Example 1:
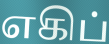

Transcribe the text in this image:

எகிப்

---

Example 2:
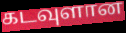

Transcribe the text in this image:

கடவுளான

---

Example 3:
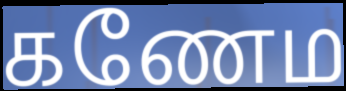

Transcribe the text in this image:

கணேம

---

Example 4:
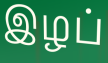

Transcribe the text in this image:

இழப்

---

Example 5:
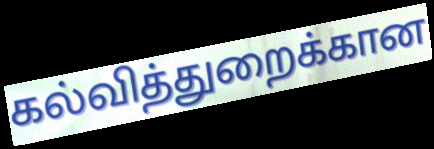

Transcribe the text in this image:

கல்வித்துறைக்கான